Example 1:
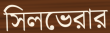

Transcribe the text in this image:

সিলভেরার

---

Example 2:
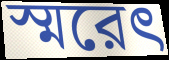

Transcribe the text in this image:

স্মরেৎ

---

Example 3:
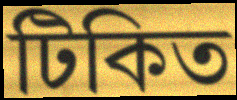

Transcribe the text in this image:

টিকিত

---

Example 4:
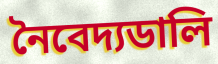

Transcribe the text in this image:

নৈবেদ্যডালি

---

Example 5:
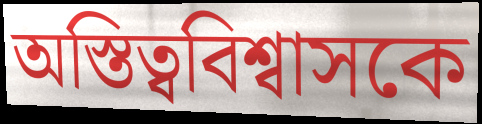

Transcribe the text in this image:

অস্তিত্ববিশ্বাসকে